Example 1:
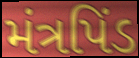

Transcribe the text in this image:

મંત્રપિંડ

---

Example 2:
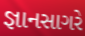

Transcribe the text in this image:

જ્ઞાનસાગરે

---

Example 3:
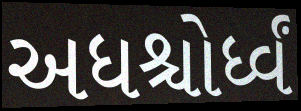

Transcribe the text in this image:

અધશ્ચોર્ધ્વં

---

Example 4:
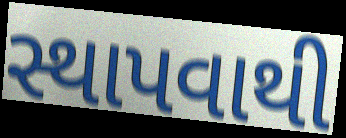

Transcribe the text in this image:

સ્થાપવાથી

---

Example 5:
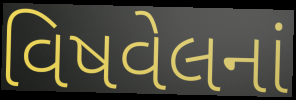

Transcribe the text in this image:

વિષવેલનાં